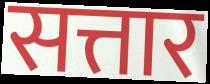
सत्तार